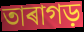
তাৰাগড়